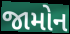
જામોન